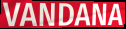
VANDANA